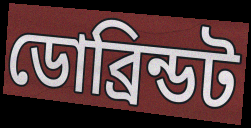
ডোব্রিন্ডট